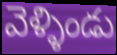
వెళ్ళిండు